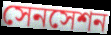
সেনসেশন